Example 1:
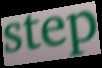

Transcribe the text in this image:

step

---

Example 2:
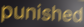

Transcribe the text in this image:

punished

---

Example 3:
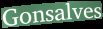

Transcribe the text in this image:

Gonsalves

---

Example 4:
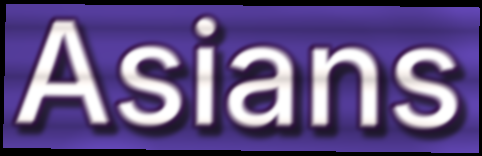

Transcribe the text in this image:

Asians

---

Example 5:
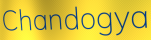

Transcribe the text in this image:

Chandogya